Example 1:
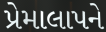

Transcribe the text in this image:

પ્રેમાલાપને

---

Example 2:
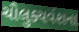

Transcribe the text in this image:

ચૌલુક્યવંશના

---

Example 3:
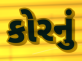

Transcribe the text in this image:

કોરનું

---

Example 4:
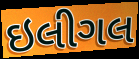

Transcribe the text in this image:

ઇલીગલ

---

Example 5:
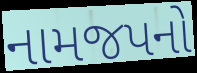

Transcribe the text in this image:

નામજપનો